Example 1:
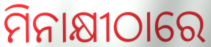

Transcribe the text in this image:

ମିନାକ୍ଷୀଠାରେ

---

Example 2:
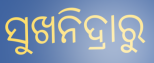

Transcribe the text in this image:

ସୁଖନିଦ୍ରାରୁ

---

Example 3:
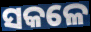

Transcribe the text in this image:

ସକଳେ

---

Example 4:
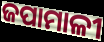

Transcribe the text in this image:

ଜପାମାଳୀ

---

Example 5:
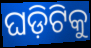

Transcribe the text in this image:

ଘଡ଼ିଟିକୁ